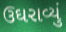
ઉઘરાવ્યું